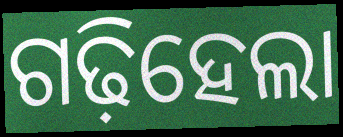
ଗଢ଼ିହେଲା